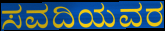
ಸವದಿಯವರ